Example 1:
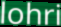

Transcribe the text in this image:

lohri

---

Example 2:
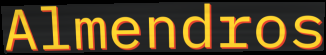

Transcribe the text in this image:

Almendros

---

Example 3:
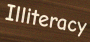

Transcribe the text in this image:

Illiteracy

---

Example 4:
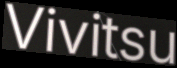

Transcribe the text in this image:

Vivitsu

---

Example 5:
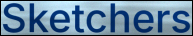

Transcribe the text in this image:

Sketchers